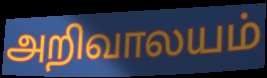
அறிவாலயம்